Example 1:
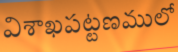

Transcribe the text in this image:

విశాఖపట్టణములో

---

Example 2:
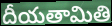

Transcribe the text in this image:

దీయతామితి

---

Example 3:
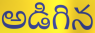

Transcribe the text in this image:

అడిగిన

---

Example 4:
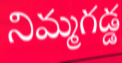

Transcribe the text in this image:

నిమ్మగడ్డ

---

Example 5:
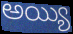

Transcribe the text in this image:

అయ్యి